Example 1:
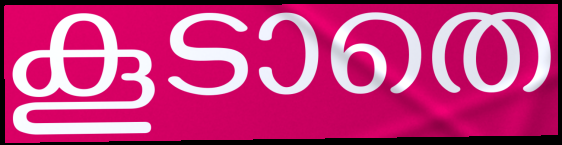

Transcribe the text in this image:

കൂടാതെ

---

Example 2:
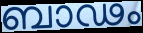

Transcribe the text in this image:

ബാഢം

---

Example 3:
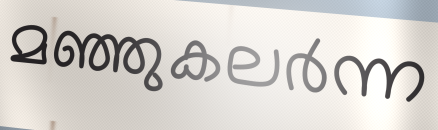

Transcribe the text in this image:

മഞ്ഞുകലർന്ന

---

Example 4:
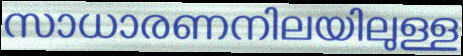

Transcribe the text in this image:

സാധാരണനിലയിലുള്ള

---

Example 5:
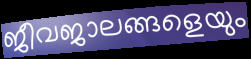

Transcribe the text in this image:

ജീവജാലങ്ങളെയും